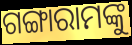
ଗଙ୍ଗାରାମଙ୍କୁ